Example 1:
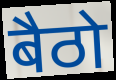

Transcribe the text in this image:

बैठो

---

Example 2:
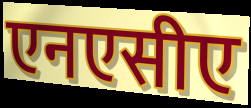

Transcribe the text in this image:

एनएसीए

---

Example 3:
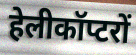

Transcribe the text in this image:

हेलीकॉप्टरों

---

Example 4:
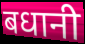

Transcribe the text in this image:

बधानी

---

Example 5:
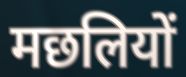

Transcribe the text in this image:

मछलियों